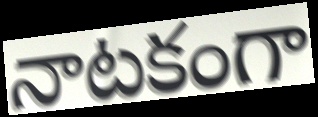
నాటకంగా